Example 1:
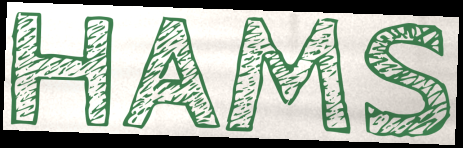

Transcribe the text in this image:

HAMS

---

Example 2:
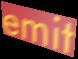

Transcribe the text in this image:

emit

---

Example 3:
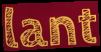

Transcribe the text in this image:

lant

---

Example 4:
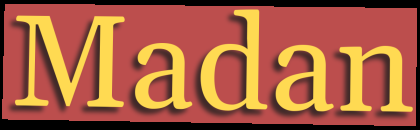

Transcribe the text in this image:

Madan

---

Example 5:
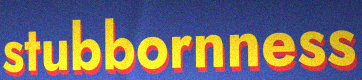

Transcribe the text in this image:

stubbornness